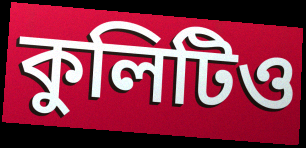
কুলিটিও